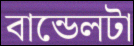
বান্ডেলটা